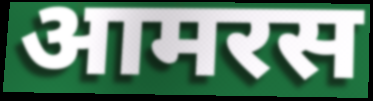
आमरस